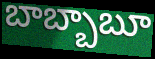
బాబ్బాబూ